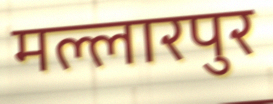
मल्लारपुर